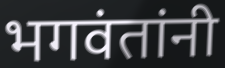
भगवंतांनी